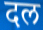
दल